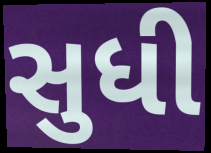
સુધી